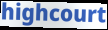
highcourt